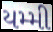
યમ્મી